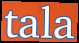
tala